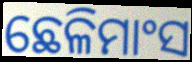
ଛେଳିମାଂସ